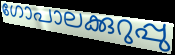
ഗോപാലക്കുറുപ്പു